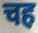
चह